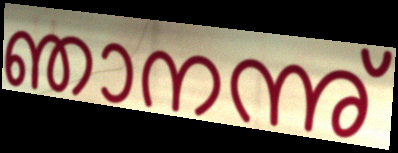
ഞാനന്നു്